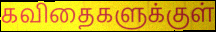
கவிதைகளுக்குள்